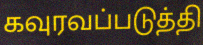
கவுரவப்படுத்தி